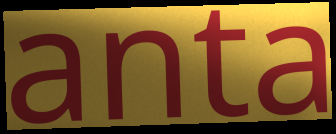
anta